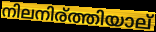
നിലനിര്ത്തിയാല്